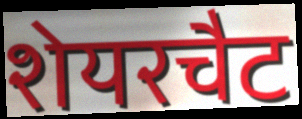
शेयरचैट